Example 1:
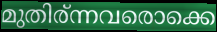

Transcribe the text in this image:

മുതിര്ന്നവരൊക്കെ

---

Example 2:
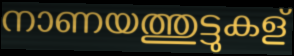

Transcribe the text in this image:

നാണയത്തുട്ടുകള്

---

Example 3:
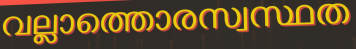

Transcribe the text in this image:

വല്ലാത്തൊരസ്വസ്ഥത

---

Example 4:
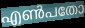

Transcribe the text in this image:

എൺപതോ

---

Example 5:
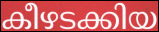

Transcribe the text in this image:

കീഴടക്കിയ